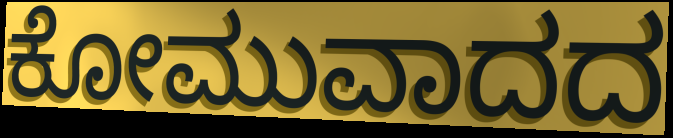
ಕೋಮುವಾದದ